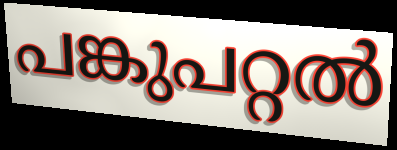
പങ്കുപറ്റൽ